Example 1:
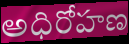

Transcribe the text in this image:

అధిరోహణ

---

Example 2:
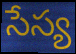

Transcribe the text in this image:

సేస్య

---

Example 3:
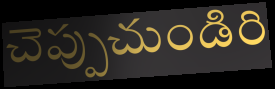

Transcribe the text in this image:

చెప్పుచుండిరి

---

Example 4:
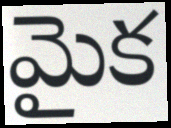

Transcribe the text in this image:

మైక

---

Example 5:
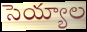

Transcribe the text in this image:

సెయ్యాల